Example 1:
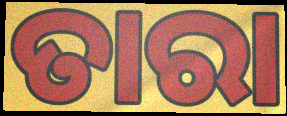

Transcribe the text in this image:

ତାରା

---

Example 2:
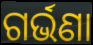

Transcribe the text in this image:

ଗର୍ଭଣା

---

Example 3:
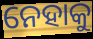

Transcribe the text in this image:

ନେହାକୁ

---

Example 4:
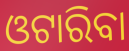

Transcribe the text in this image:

ଓଟାରିବା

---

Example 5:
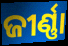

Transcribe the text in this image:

ଜୀର୍ଣ୍ଣା